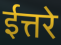
ईत्तरे